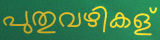
പുതുവഴികള്